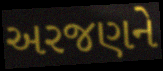
અરજણને